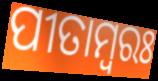
ପୀତାମ୍ୱରଃ